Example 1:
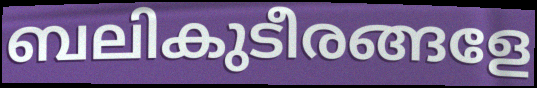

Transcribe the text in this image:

ബലികുടീരങ്ങളേ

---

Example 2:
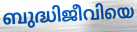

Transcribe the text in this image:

ബുദ്ധിജീവിയെ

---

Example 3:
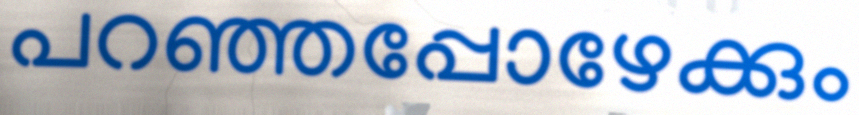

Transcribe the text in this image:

പറഞ്ഞപ്പോഴേക്കും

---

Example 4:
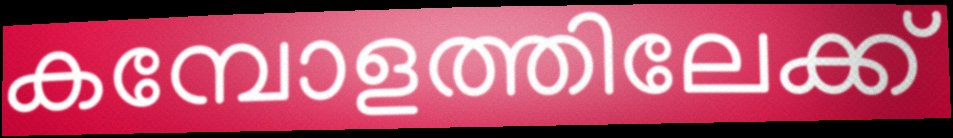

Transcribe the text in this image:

കമ്പോളത്തിലേക്ക്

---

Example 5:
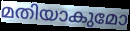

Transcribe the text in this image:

മതിയാകുമോ